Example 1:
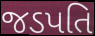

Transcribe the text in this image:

જડપતિ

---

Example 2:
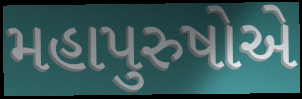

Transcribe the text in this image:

મહાપુરુષોએ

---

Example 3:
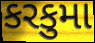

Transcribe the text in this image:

કરકુમા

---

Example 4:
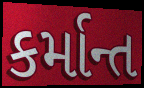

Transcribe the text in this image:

કર્માન્ત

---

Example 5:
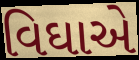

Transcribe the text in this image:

વિઘાએ